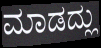
ಮಾಡದ್ಲು